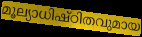
മൂല്യാധിഷ്ഠിതവുമായ